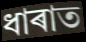
ধাৰাত